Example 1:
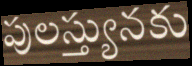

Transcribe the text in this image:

పులస్త్యునకు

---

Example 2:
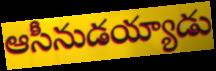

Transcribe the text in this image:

ఆసీనుడయ్యాడు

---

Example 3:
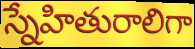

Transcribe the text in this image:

స్నేహితురాలిగా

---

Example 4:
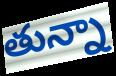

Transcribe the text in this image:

తున్నా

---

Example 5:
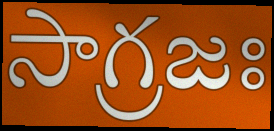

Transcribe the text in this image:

సాగ్రజః